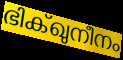
ഭിക്ഖുനീനം